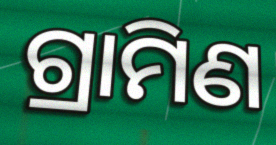
ଗ୍ରାମିଣ